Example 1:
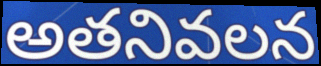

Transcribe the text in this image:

అతనివలన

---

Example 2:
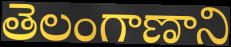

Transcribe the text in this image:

తెలంగాణాని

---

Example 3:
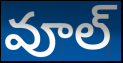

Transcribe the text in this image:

వూల్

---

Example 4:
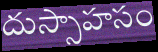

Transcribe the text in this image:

దుస్సాహసం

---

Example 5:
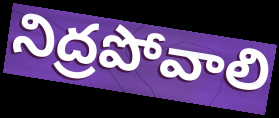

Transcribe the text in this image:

నిద్రపోవాలి